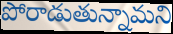
పోరాడుతున్నామని